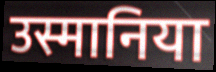
उस्मानिया